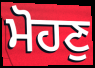
ਮੋਹਣੁ